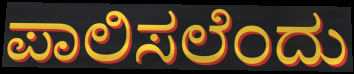
ಪಾಲಿಸಲೆಂದು